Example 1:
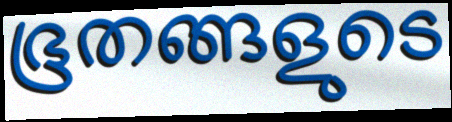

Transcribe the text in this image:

ഭൂതങ്ങളുടെ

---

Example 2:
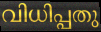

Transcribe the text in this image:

വിധിപ്പതു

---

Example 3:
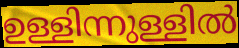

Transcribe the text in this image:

ഉള്ളിന്നുള്ളിൽ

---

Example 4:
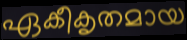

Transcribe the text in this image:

ഏകീകൃതമായ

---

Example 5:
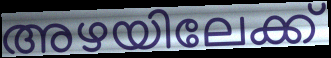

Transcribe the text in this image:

അഴയിലേക്ക്